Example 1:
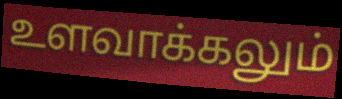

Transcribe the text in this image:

உளவாக்கலும்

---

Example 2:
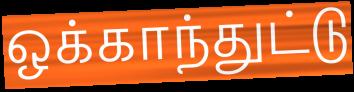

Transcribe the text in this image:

ஒக்காந்துட்டு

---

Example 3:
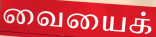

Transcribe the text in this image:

வையைக்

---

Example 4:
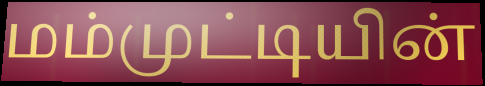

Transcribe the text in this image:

மம்முட்டியின்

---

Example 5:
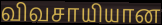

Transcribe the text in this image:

விவசாயியான